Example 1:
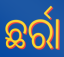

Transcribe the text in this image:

ଛର୍ରା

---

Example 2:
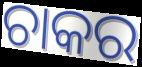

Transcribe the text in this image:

ଚାକର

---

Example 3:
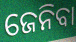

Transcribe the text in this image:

ଜେନିବା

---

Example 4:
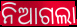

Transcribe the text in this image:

ନିଆଗଲା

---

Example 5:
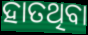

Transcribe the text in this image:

ହାତଥିବା